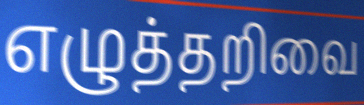
எழுத்தறிவை